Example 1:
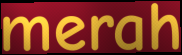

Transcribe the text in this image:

merah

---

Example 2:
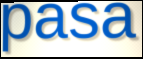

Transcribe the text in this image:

pasa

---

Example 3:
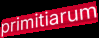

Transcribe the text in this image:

primitiarum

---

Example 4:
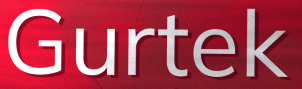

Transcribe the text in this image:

Gurtek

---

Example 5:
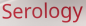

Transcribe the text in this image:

Serology